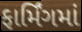
ફાર્મિંગમાં